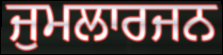
ਜੁਮਲਾਰਜਨ